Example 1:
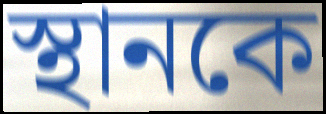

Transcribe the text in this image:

স্থানকে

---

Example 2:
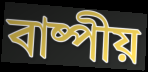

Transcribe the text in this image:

বাষ্পীয়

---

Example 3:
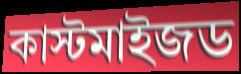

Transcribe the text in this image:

কাস্টমাইজড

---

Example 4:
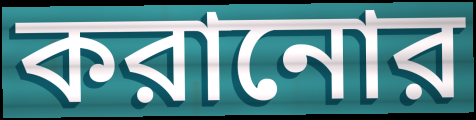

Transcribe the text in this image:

করানোর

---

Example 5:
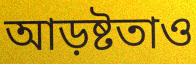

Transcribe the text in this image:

আড়ষ্টতাও